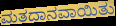
ಮತದಾನವಾಯಿತು